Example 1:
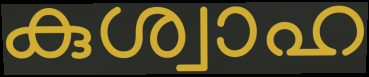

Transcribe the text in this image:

കുശ്വാഹ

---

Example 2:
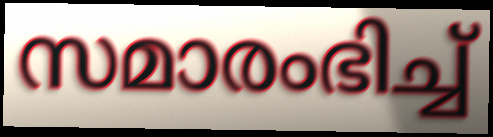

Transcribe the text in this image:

സമാരംഭിച്ച്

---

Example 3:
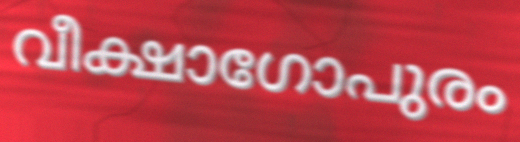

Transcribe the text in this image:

വീക്ഷാഗോപുരം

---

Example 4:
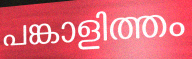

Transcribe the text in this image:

പങ്കാളിത്തം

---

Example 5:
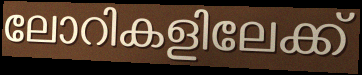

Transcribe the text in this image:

ലോറികളിലേക്ക്